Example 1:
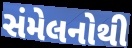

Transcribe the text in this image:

સંમેલનોથી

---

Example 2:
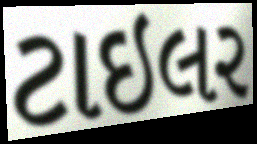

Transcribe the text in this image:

ટાઇલર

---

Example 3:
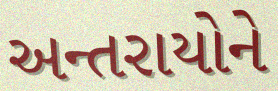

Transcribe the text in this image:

અન્તરાયોને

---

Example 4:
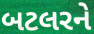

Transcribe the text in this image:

બટલરને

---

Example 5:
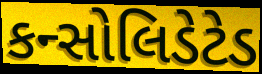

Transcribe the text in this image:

કન્સોલિડેટેડ